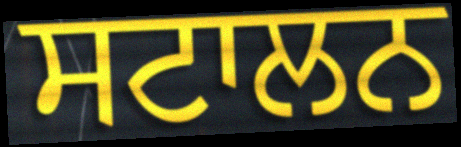
ਸਟਾਲਨ